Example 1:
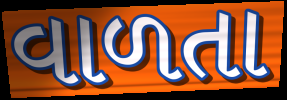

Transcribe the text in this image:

વાળતા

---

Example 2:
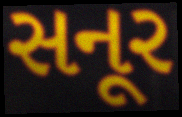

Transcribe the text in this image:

સનૂર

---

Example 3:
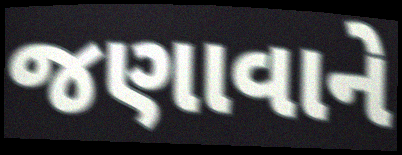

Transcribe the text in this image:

જણાવાને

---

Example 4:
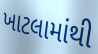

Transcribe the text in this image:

ખાટલામાંથી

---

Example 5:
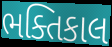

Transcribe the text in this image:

ભક્તિકાલ